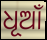
ଧୂଆଁ